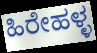
ಹಿರೇಹಳ್ಳ